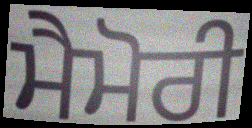
ਮੈਮੋਰੀ